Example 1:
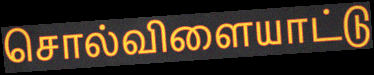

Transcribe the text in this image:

சொல்விளையாட்டு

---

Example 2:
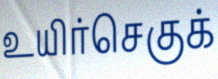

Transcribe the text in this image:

உயிர்செகுக்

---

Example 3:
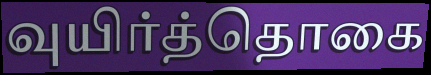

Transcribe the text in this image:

வுயிர்த்தொகை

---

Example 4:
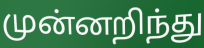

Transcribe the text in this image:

முன்னறிந்து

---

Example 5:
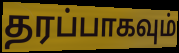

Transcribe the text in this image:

தரப்பாகவும்